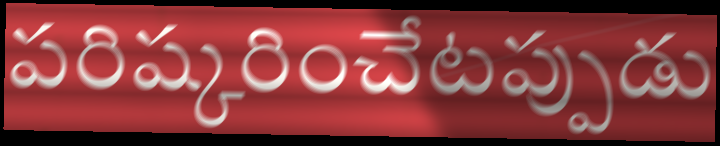
పరిష్కరించేటప్పుడు